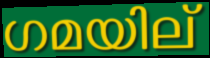
ഗമയില്